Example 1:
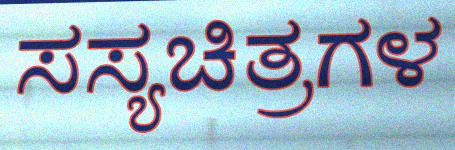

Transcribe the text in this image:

ಸಸ್ಯಚಿತ್ರಗಳ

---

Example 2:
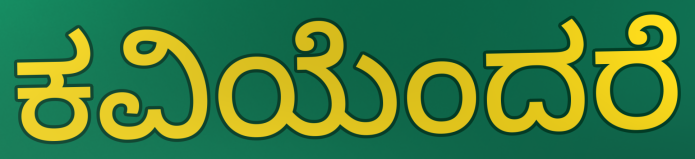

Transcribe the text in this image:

ಕವಿಯೆಂದರೆ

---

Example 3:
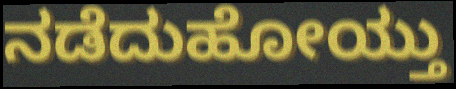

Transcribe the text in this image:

ನಡೆದುಹೋಯ್ತು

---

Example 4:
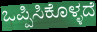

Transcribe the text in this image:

ಒಪ್ಪಿಸಿಕೊಳ್ಳದೆ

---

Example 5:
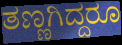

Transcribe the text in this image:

ತಣ್ಣಗಿದ್ದರೂ